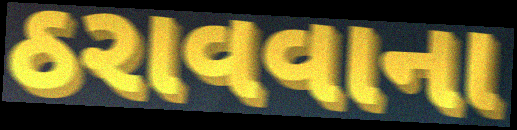
ઠરાવવાના